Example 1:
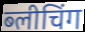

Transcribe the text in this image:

ब्‍लीचिंग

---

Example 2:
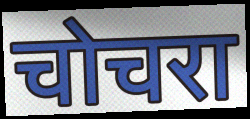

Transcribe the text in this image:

चोचरा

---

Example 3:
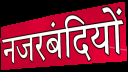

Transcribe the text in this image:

नजरबंदियों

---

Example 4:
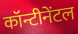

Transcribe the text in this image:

कॉन्टीनेंटल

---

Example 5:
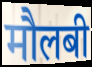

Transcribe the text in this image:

मौलबी